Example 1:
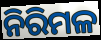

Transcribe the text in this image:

ନିରିମଳ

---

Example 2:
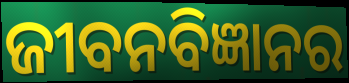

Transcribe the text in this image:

ଜୀବନବିଜ୍ଞାନର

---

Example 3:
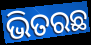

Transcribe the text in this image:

ଭିତରଛ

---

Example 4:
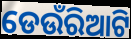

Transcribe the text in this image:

ଡେଉଁରିଆଟି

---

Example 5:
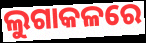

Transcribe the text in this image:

ଲୁଗାକଳରେ